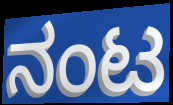
ನಂಟ